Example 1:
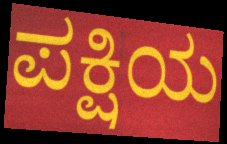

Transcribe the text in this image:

ಪಕ್ಷಿಯ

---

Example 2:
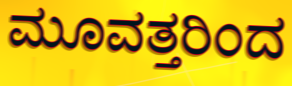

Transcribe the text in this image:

ಮೂವತ್ತರಿಂದ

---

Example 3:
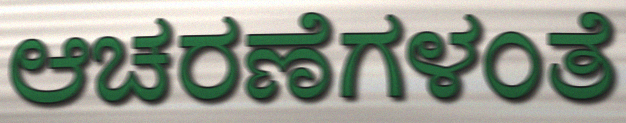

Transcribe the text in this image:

ಆಚರಣೆಗಳಂತೆ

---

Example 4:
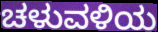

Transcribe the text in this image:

ಚಳುವಳಿಯ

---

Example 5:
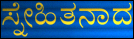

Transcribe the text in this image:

ಸ್ನೇಹಿತನಾದ